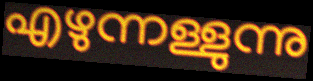
എഴുന്നള്ളുന്നു